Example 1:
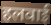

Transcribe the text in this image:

हलवाई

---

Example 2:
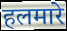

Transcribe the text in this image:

हलमारे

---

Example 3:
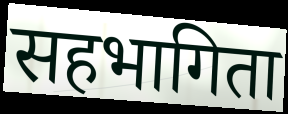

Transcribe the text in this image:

सहभागिता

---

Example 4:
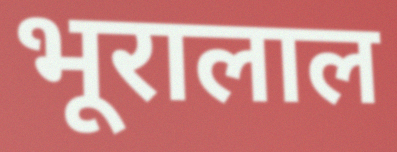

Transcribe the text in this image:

भूरालाल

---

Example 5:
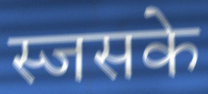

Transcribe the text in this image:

स्जसके